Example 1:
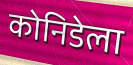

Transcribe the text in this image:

कोनिडेला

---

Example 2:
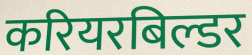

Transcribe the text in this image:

करियरबिल्डर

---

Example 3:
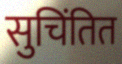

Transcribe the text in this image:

सुचिंतित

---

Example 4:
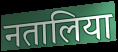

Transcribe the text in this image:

नतालिया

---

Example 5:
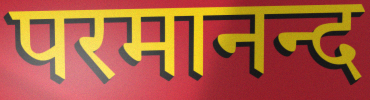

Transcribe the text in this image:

परमानन्द